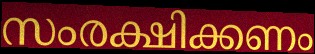
സംരക്ഷിക്കണം